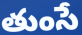
తుంసే